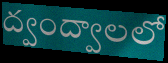
ద్వంద్వాలలో